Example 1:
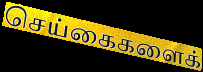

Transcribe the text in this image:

செய்கைகளைக்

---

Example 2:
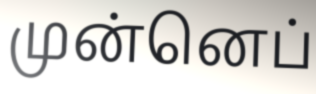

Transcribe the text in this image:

முன்னெப்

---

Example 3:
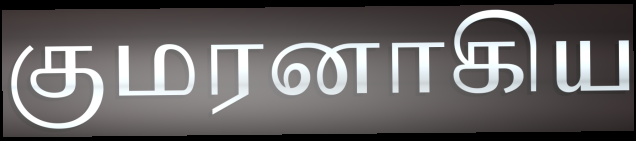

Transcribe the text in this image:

குமரனாகிய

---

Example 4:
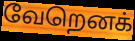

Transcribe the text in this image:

வேறெனக்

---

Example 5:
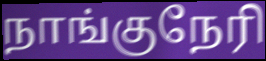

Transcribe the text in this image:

நாங்குநேரி